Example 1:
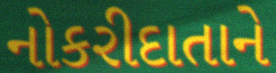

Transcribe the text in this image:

નોકરીદાતાને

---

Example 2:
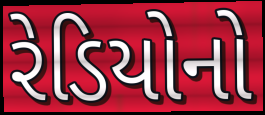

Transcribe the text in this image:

રેડિયોનો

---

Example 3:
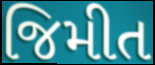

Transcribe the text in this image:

જિમીત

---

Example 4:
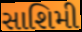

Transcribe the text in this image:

સાશિમી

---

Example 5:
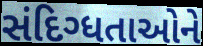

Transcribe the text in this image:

સંદિગ્ધતાઓને